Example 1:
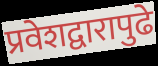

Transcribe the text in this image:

प्रवेशद्वारापुढे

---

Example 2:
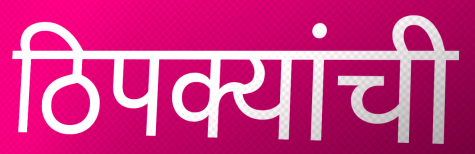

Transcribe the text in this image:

ठिपक्यांची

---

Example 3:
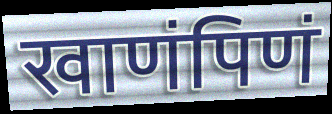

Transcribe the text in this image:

खाणंपिणं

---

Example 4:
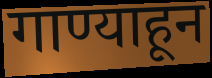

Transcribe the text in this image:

गाण्याहून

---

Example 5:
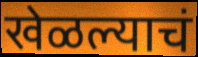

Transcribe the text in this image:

खेळल्याचं